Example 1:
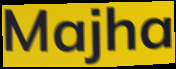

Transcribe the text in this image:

Majha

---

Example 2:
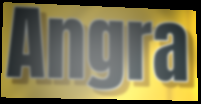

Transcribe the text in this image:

Angra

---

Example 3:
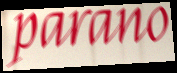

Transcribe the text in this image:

parano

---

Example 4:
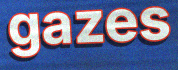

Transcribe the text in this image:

gazes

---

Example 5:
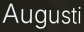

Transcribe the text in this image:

Augusti